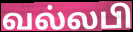
வல்லபி